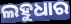
ଲହୁଧାର